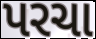
પરચા